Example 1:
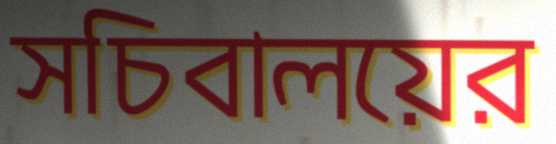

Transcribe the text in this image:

সচিবালয়ের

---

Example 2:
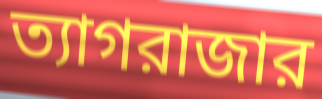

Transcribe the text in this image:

ত্যাগরাজার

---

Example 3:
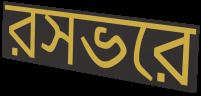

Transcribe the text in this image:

রসভরে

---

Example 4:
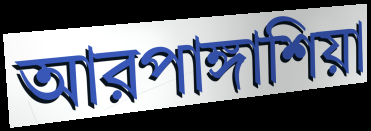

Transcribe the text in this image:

আরপাঙ্গাশিয়া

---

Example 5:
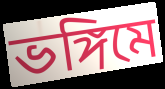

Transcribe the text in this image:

ভঙ্গিমে